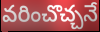
వరించొచ్చనే